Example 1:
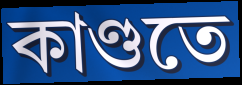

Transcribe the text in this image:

কাণ্ডতে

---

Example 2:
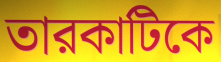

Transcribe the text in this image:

তারকাটিকে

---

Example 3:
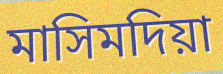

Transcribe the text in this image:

মাসিমদিয়া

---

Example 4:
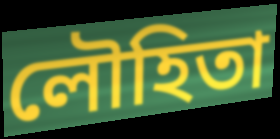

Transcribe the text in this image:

লৌহিতা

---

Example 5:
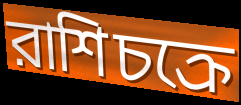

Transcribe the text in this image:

রাশিচক্রে